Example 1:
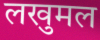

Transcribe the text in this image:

लखुमल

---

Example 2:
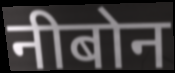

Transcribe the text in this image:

नीबोन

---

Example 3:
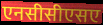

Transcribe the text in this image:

एनसीसीएसए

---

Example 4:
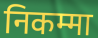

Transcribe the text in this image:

निकम्मा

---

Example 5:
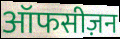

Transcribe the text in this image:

ऑफसीज़न